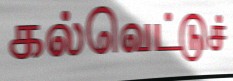
கல்வெட்டுச்